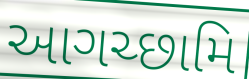
આગચ્છામિ